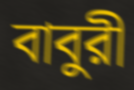
বাবুরী